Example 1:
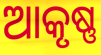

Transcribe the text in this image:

ଆକୃଷ୍ଣ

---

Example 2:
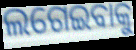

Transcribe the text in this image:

ଲଗେଇବାକୁ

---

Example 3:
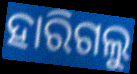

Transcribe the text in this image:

ହାରିଗଲୁ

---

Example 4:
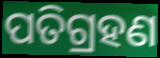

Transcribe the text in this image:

ପତିଗ୍ରହଣ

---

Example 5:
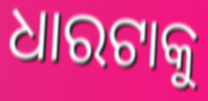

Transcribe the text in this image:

ଧାରଟାକୁ